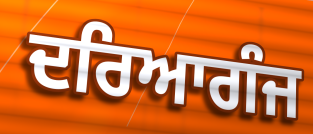
ਦਰਿਆਗੰਜ